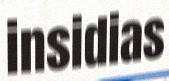
insidias